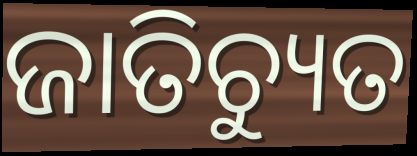
ଜାତିଚ୍ୟୁତ